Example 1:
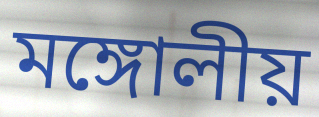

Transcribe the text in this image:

মঙ্গোলীয়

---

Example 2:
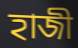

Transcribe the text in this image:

হাজী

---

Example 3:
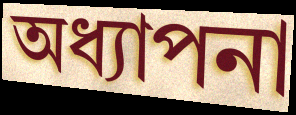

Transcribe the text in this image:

অধ্যাপনা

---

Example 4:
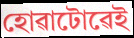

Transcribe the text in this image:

হোৱাটোৱেই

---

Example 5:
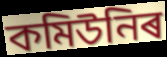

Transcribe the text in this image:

কমিউনিৰ